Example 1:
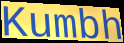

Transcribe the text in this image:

Kumbh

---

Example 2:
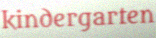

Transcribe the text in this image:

kindergarten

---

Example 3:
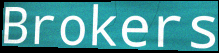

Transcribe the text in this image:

Brokers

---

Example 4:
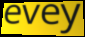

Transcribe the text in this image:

evey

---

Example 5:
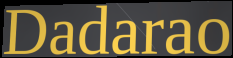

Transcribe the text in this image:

Dadarao